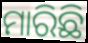
ମାରିଛି